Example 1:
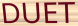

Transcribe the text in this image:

DUET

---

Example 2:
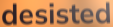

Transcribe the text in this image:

desisted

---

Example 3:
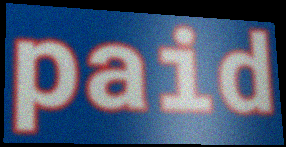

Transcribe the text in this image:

paid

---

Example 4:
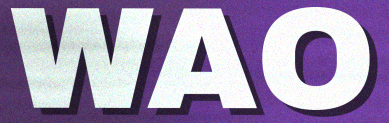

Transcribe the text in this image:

WAO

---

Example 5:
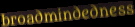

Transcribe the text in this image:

broadmindedness